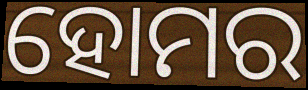
ହୋମର